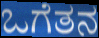
ಒಗೆತನ